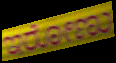
ಇರೋಣು